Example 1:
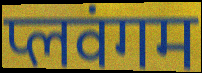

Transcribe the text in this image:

प्लवंगम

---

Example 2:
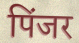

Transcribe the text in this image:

पिंजर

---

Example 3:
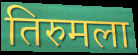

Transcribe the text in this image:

तिरुमला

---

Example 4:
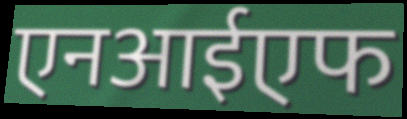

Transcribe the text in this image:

एनआईएफ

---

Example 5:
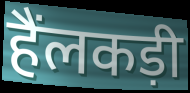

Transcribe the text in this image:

हैंलकड़ी